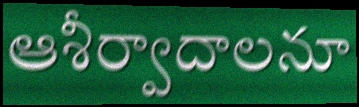
ఆశీర్వాదాలనూ